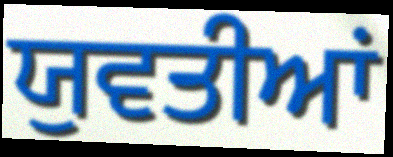
ਯੁਵਤੀਆਂ